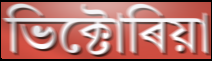
ভিক্টোৰিয়া